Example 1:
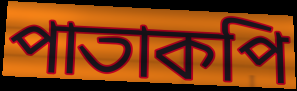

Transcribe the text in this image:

পাতাকপি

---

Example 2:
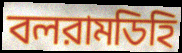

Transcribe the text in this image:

বলরামডিহি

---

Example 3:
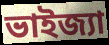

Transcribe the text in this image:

ভাইজ্যা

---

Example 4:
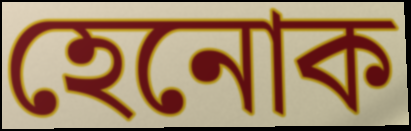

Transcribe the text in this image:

হেনোক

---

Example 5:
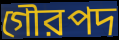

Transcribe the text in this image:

গৌরপদ